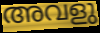
അവളു